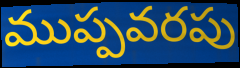
ముప్పవరపు